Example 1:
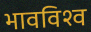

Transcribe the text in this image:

भावविश्व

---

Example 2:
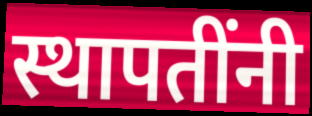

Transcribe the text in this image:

स्थापतींनी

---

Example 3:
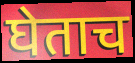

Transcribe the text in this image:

घेताच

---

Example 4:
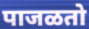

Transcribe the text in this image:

पाजळतो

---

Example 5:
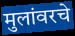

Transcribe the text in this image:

मुलांवरचे